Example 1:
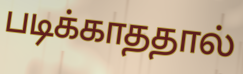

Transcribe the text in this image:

படிக்காததால்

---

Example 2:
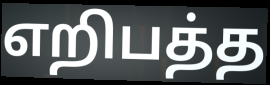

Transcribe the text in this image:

எறிபத்த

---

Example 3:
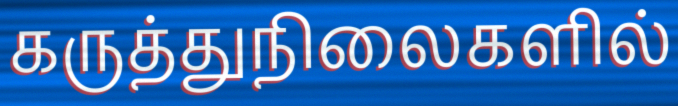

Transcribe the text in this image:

கருத்துநிலைகளில்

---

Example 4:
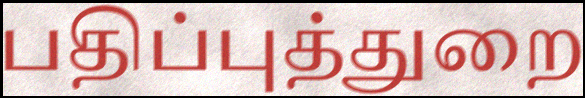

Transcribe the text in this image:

பதிப்புத்துறை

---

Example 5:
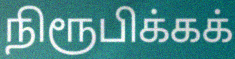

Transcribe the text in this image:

நிரூபிக்கக்